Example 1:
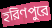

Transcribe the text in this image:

হরিণপুরে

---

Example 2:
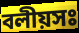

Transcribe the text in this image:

বলীয়সঃ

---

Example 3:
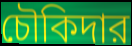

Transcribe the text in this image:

চৌকিদার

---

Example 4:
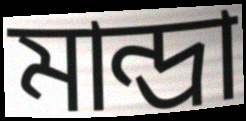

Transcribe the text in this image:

মান্দ্রা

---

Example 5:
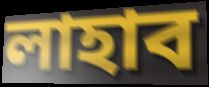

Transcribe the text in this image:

লাহাব